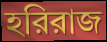
হরিরাজ